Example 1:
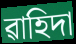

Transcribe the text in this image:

ৱাহিদা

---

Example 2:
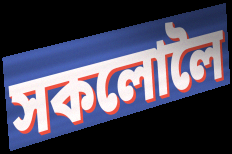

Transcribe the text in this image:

সকলোলৈ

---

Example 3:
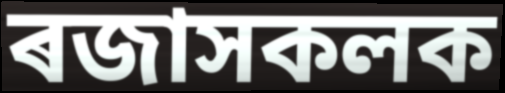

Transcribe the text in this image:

ৰজাসকলক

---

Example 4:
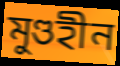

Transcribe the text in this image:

মুণ্ডহীন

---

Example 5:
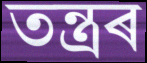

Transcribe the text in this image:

তন্ত্ৰৰ